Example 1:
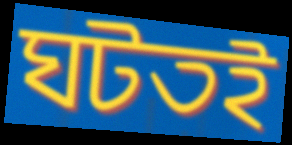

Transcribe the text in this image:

ঘটতই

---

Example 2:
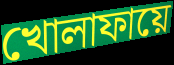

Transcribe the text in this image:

খোলাফায়ে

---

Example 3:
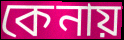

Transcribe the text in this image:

কেনায়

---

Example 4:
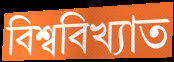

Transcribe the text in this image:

বিশ্ববিখ্যাত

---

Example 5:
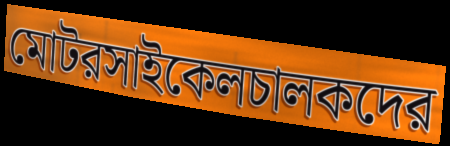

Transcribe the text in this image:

মোটরসাইকেলচালকদের